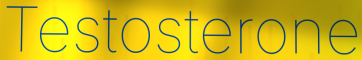
Testosterone